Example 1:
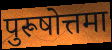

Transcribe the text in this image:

पुरूषोत्तमा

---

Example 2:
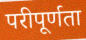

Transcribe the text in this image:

परीपूर्णता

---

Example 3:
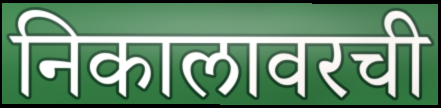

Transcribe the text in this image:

निकालावरची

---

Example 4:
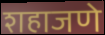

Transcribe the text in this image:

शहाजणे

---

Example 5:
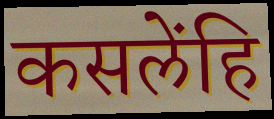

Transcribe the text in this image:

कसलेंहि